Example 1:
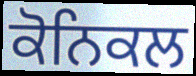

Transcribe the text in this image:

ਕੋਨਿਕਲ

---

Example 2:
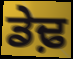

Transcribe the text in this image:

ਡੇਢ਼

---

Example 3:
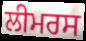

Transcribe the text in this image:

ਲੀਮਰਸ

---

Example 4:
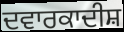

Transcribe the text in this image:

ਦਵਾਰਕਾਦੀਸ਼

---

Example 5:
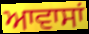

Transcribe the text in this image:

ਆਵਾਸਾਂ